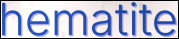
hematite